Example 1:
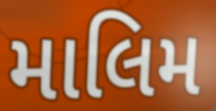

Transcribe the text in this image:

માલિમ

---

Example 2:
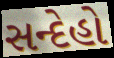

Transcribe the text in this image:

સન્દેહો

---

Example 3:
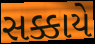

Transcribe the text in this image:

સક્કાયે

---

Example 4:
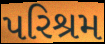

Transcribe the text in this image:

પરિશ્રમ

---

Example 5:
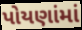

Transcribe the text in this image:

પોયણાંમાં